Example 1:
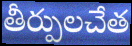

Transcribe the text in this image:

తీర్పులచేత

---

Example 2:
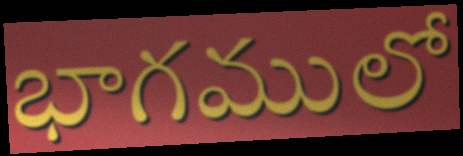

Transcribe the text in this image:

భాగములో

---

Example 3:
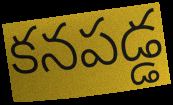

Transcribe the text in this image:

కనపడ్డ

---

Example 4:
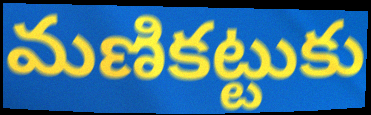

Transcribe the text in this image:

మణికట్టుకు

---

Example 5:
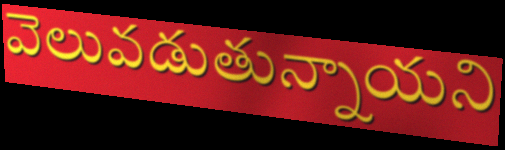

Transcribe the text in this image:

వెలువడుతున్నాయని